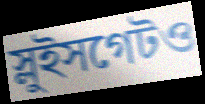
স্লুইসগেটও